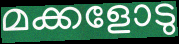
മക്കളോടു